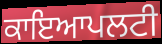
ਕਾਇਆਪਲਟੀ